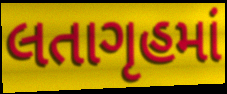
લતાગૃહમાં